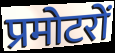
प्रमोटरों